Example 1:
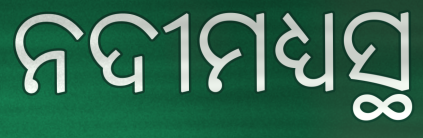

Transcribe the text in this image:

ନଦୀମଧ୍ୟସ୍ଥ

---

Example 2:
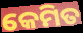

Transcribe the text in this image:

କେମିତ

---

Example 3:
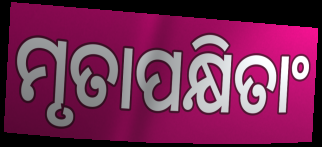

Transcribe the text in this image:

ମୃତାପକ୍ଷିତାଂ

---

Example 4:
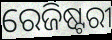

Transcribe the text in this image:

ରେଜିଷ୍ଟରୀ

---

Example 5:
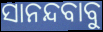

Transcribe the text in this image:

ସାନନ୍ଦବାବୁ